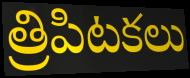
త్రిపిటకలు